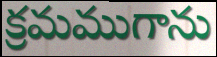
క్రమముగాను